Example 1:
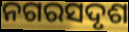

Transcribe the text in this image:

ନଗରସଦୃଶ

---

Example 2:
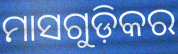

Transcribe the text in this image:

ମାସଗୁଡ଼ିକର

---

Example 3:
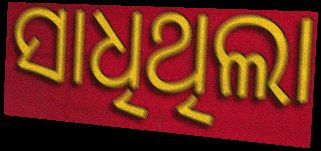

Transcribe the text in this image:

ସାଧିଥିଲା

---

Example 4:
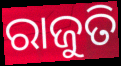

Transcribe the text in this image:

ରାଜୁତି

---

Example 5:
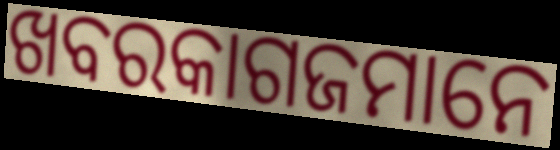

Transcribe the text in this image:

ଖବରକାଗଜମାନେ